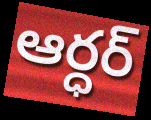
ఆర్ధర్